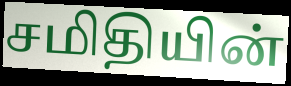
சமிதியின்